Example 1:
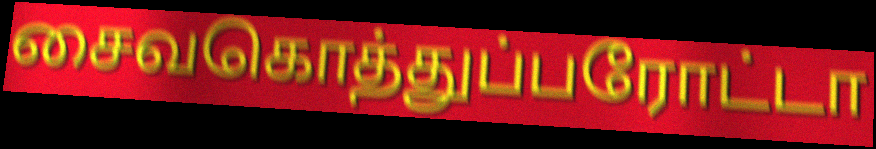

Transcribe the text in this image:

சைவகொத்துப்பரோட்டா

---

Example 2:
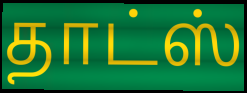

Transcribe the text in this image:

தாட்ஸ்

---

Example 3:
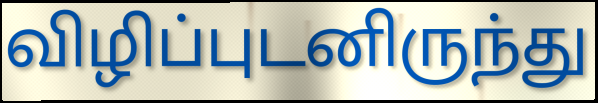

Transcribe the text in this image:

விழிப்புடனிருந்து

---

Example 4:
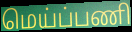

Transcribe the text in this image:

மெய்ப்பணி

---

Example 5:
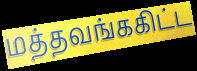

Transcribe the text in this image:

மத்தவங்ககிட்ட